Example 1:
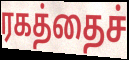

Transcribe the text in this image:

ரகத்தைச்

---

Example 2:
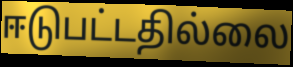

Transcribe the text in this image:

ஈடுபட்டதில்லை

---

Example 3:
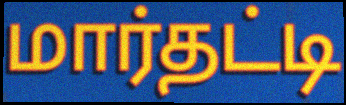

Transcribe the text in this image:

மார்தட்டி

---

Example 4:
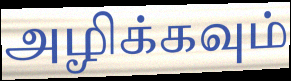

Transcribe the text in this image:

அழிக்கவும்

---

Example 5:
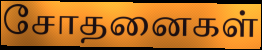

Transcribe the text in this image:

சோதனைகள்